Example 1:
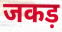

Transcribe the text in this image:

जकड़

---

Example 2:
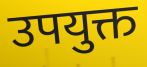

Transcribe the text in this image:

उपयुक्त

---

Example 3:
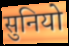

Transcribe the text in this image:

सुनियो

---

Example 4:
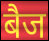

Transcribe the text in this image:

बैज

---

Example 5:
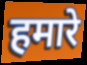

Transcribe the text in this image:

हमारे